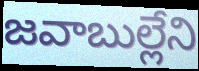
జవాబుల్లేని